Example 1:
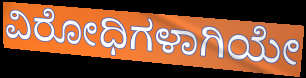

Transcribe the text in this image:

ವಿರೋಧಿಗಳಾಗಿಯೇ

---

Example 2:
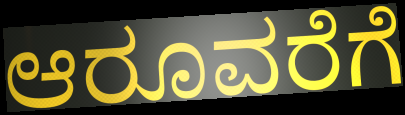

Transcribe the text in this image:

ಆರೂವರೆಗೆ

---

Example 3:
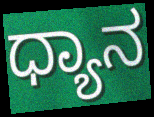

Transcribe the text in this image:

ಧ್ಯಾನ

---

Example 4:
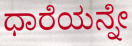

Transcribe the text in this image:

ಧಾರೆಯನ್ನೇ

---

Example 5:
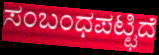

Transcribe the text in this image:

ಸಂಬಂಧಪಟ್ಟಿದೆ